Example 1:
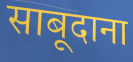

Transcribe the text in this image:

साबूदाना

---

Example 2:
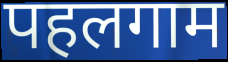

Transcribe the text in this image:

पहलगाम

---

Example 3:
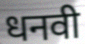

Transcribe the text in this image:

धनवी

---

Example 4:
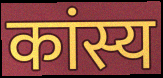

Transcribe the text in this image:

कांस्य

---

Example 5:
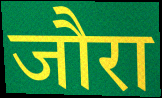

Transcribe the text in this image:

जौरा